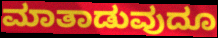
ಮಾತಾಡುವುದೂ